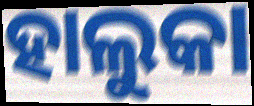
ହାଲୁକା